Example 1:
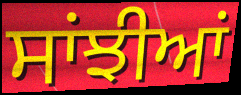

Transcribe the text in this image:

ਸਾਂਝੀਆਂ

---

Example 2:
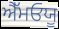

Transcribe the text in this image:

ਐੱਮਓਯੂ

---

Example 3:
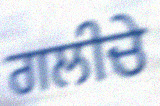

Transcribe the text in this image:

ਗਲੀਚੇ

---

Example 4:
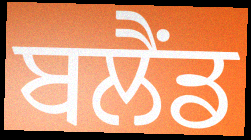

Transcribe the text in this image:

ਬਲੈਂਡ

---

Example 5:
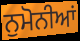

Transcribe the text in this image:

ਨੁਮੋਨੀਆਂ